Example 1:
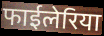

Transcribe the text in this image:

फाईलेरिया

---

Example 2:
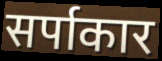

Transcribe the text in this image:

सर्पाकार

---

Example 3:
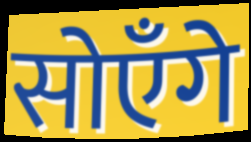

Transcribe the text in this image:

सोएँगे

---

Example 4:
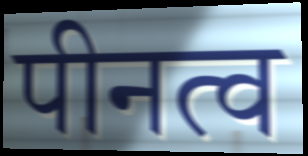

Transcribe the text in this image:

पीनत्व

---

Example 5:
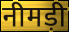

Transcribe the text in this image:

नीमड़ी